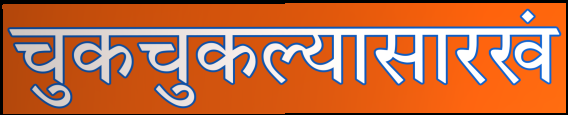
चुकचुकल्यासारखं